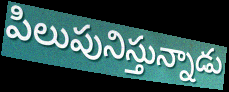
పిలుపునిస్తున్నాడు